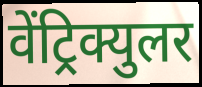
वेंट्रिक्युलर